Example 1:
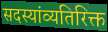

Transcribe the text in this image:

सदस्यांव्यतिरिक्त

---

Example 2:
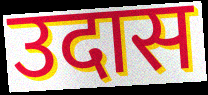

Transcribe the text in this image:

उदास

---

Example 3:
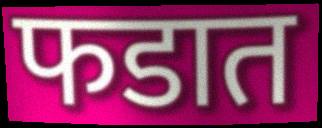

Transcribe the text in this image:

फडात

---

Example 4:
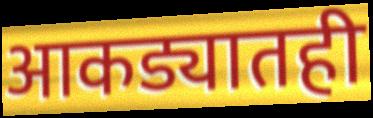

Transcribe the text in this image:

आकड्यातही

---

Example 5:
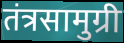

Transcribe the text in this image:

तंत्रसामुग्री